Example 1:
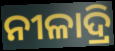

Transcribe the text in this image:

ନୀଳାଦ୍ରି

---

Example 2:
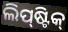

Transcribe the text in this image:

ଲିପ୍‍ଷ୍ଟିକ୍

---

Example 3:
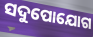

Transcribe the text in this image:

ସଦୁପୋଯୋଗ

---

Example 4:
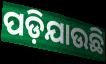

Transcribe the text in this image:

ପଡ଼ିଯାଉଛି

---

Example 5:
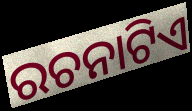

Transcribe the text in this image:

ରଚନାଟିଏ